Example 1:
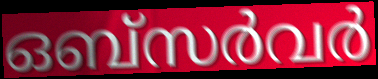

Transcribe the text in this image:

ഒബ്സർവർ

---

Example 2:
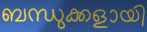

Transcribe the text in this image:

ബന്ധുക്കളായി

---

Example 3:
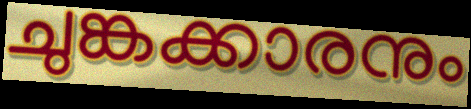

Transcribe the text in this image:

ചുങ്കക്കാരനും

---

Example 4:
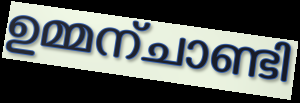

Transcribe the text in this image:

ഉമ്മന്ചാണ്ടി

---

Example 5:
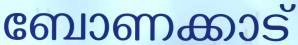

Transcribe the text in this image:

ബോണക്കാട്